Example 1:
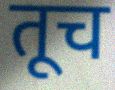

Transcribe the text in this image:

तूच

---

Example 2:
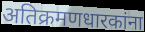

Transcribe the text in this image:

अतिक्रमणधारकांना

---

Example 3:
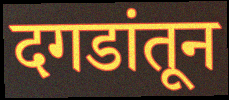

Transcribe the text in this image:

दगडांतून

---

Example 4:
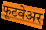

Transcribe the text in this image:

फूटवेअर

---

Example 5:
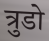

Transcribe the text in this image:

त्रुडो